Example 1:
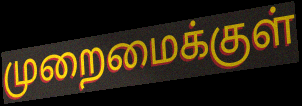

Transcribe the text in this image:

முறைமைக்குள்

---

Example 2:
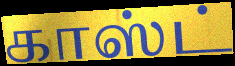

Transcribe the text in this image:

காஸ்ட்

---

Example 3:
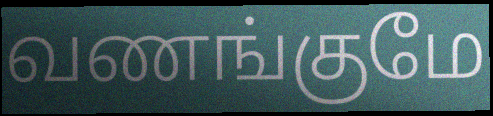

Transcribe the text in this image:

வணங்குமே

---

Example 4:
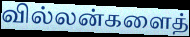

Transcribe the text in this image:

வில்லன்களைத்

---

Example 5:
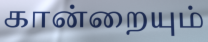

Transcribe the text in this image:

கான்றையும்